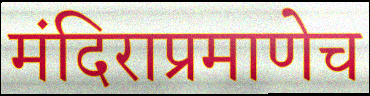
मंदिराप्रमाणेच